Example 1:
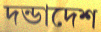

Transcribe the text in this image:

দন্ডাদেশ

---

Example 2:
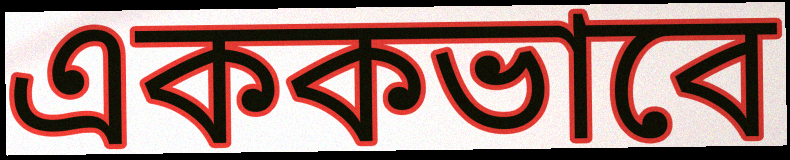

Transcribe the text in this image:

এককভাবে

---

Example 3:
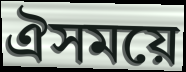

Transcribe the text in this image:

ঐসময়ে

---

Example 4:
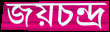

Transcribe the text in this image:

জয়চন্দ্র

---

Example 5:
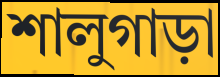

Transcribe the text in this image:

শালুগাড়া